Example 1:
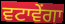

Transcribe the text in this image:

ਵਟਾਵੇਂਗਾ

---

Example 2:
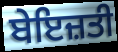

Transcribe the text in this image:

ਬੇਇਜ਼ਤੀ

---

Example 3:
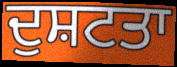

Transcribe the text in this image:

ਦੁਸ਼ਟਤਾ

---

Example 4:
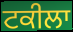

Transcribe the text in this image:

ਟਕੀਲਾ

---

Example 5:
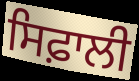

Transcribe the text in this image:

ਸਿਫ਼ਾਲੀ